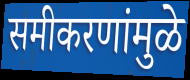
समीकरणांमुळे